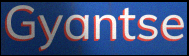
Gyantse